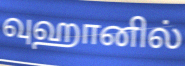
வுஹானில்